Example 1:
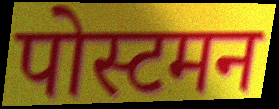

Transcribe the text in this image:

पोस्टमन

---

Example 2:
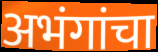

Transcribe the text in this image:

अभंगांचा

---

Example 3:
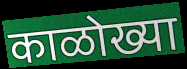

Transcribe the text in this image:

काळोख्या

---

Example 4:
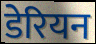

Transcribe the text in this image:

डेरियन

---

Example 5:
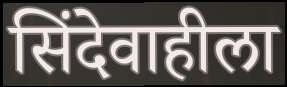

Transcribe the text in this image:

सिंदेवाहीला